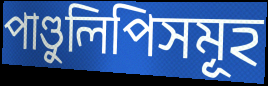
পাণ্ডুলিপিসমূহ